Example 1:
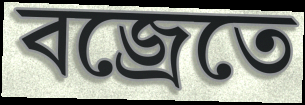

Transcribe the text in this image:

বজ্রেতে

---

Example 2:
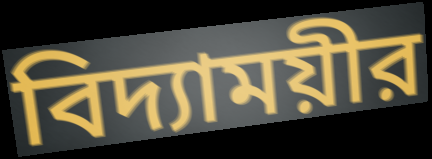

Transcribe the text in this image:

বিদ্যাময়ীর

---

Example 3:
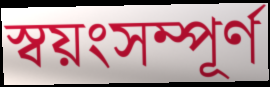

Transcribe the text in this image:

স্বয়ংসম্পূর্ণ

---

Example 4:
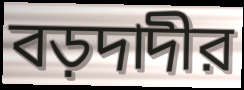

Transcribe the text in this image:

বড়দাদীর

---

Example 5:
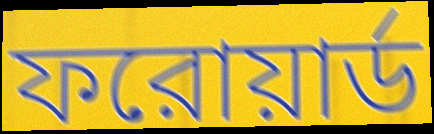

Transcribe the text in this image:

ফরোয়ার্ড